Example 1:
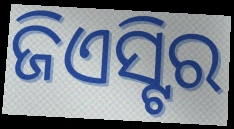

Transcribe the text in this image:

ଜିଏସ୍ଟିର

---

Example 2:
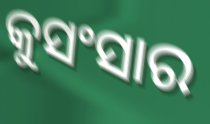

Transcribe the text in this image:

କୁସଂସାର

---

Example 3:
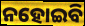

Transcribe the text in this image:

ନହୋଇବି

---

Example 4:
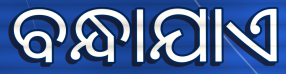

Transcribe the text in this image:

ବନ୍ଧାଯାଏ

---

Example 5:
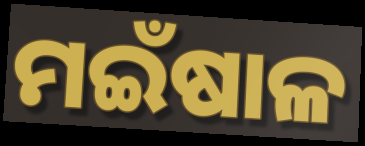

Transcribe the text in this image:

ମଇଁଷାଳ